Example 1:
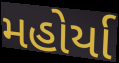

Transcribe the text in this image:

મહોર્યા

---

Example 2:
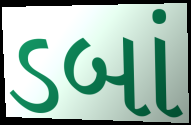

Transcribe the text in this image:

ડબાં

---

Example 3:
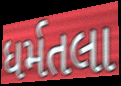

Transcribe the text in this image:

ધર્મતલા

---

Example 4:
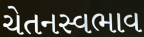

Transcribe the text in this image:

ચેતનસ્વભાવ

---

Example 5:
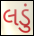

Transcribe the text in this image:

લડું